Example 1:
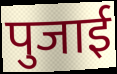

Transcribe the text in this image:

पुजाई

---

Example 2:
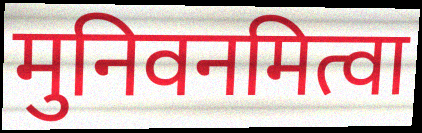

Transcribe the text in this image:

मुनिवनमित्वा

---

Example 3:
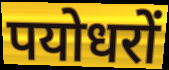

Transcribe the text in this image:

पयोधरों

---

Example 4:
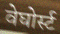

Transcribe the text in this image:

वेघोर्स्ट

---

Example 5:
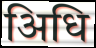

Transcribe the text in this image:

अिधि